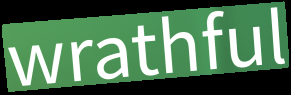
wrathful